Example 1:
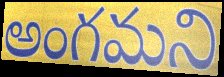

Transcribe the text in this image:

అంగమని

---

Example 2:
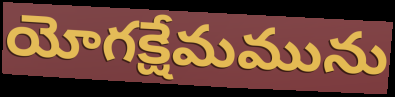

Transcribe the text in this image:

యోగక్షేమమును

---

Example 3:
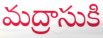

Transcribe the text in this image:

మద్రాసుకి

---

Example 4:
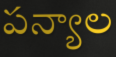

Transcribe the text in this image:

పన్యాల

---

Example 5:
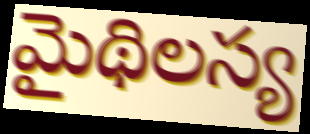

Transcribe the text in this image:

మైథిలస్య